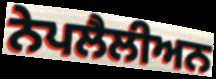
ਨੇਪਲੈਲੀਅਨ